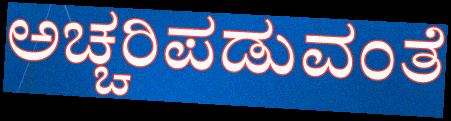
ಅಚ್ಚರಿಪಡುವಂತೆ